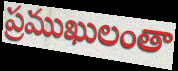
ప్రముఖులంతా